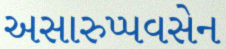
અસારુપ્પવસેન